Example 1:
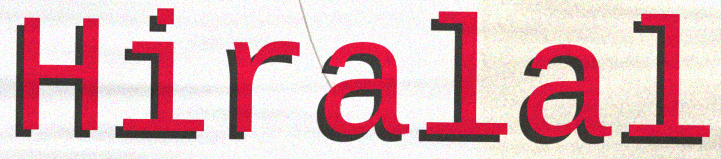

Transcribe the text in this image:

Hiralal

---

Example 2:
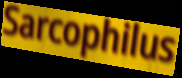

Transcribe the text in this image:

Sarcophilus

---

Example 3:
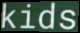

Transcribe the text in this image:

kids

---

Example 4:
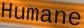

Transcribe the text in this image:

Humane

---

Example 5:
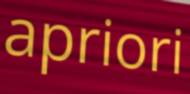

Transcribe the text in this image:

apriori